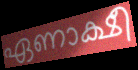
ഏണാക്ഷീ